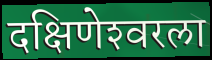
दक्षिणेश्वरला